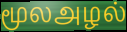
மூலஅழல்